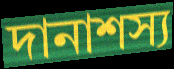
দানাশস্য